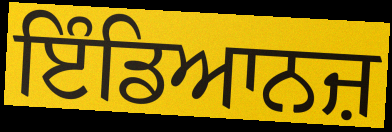
ਇੰਡਿਆਨਜ਼